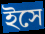
ইসে